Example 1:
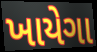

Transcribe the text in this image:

ખાયેગા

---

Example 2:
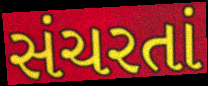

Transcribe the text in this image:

સંચરતાં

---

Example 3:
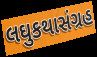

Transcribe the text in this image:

લઘુકથાસંગ્રહ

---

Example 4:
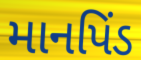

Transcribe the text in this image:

માનપિંડ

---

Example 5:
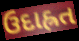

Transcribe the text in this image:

ઉદાહ્રત